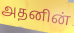
அதனின்